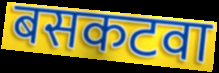
बसकटवा